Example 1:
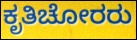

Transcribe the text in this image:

ಕೃತಿಚೋರರು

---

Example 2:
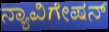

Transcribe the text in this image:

ನ್ಯಾವಿಗೇಷನ್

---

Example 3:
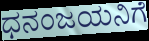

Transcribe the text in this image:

ಧನಂಜಯನಿಗೆ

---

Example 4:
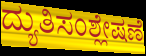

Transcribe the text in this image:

ದ್ಯುತಿಸಂಶ್ಲೇಷಣೆ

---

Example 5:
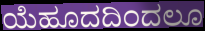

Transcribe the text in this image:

ಯೆಹೂದದಿಂದಲೂ